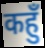
कहुँ